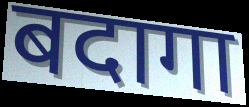
बदागा